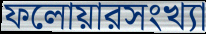
ফলোয়ারসংখ্যা